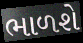
ભાળશે